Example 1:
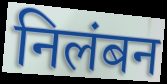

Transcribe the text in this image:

निलंबन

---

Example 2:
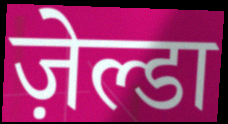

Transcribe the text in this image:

ज़ेल्डा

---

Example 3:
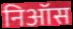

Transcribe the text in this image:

निऑस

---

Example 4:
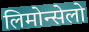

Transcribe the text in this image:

लिमोन्सेलो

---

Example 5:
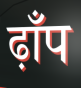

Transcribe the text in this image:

ढ़ाँप